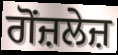
ਗੋਂਜ਼ਲੇਜ਼